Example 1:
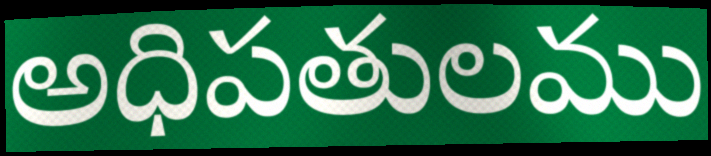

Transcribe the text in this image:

అధిపతులము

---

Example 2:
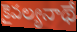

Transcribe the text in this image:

కైవల్యనాథే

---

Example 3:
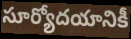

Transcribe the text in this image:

సూర్యోదయానికీ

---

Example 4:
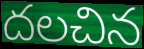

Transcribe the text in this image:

దలచిన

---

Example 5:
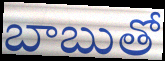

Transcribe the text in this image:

బాబుతో